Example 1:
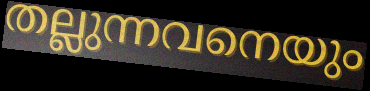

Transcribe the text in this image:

തല്ലുന്നവനെയും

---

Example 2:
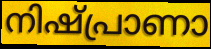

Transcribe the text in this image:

നിഷ്പ്രാണാ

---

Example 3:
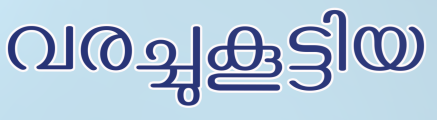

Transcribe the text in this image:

വരച്ചുകൂട്ടിയ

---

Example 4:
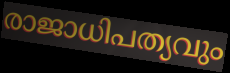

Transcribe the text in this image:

രാജാധിപത്യവും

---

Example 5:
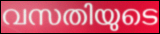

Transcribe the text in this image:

വസതിയുടെ